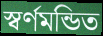
স্বর্ণমন্ডিত